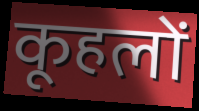
कूहलों